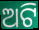
ଅଟି